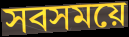
সবসময়ে